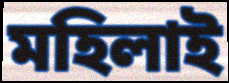
মহিলাই